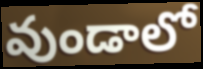
వుండాలో